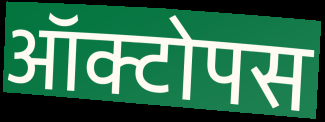
ऑक्टोपस